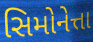
સિમોનેત્તા